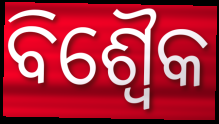
ବିଶ୍ୱୈକ